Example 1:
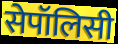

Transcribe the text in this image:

सेपॉलिसी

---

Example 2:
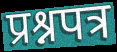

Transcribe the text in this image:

प्रश्नपत्र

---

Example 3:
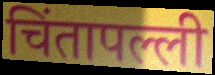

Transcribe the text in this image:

चिंतापल्ली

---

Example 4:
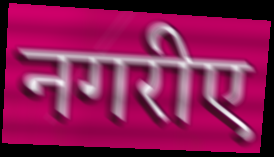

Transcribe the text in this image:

नगरीए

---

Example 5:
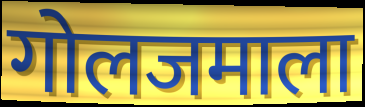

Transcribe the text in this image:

गोलजमाला